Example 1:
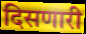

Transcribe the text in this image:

दिसणारी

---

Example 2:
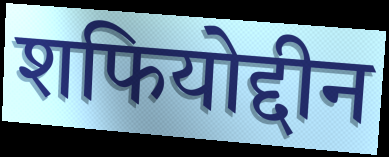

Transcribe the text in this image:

शफियोद्दीन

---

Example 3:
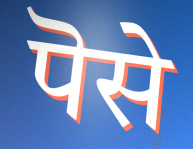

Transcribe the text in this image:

पॆसे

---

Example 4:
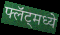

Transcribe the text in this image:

फ्लॅट्मध्ये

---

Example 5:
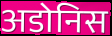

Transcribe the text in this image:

अडोनिस